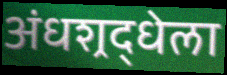
अंधश्रद्धेला